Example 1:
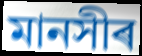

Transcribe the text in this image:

মানসীৰ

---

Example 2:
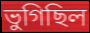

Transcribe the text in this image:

ভুগিছিল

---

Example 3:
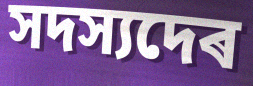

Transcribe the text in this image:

সদস্যদেৰ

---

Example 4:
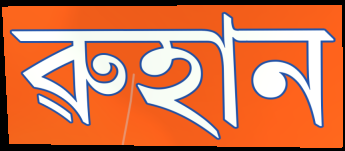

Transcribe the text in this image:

ৱুহান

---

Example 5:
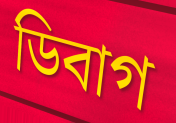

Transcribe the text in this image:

ডিবাগ